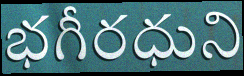
భగీరధుని